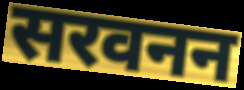
सरवनन